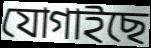
যোগাইছে